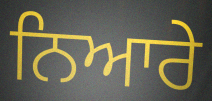
ਨਿਆਰੇ